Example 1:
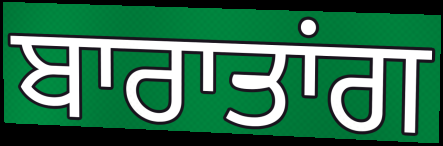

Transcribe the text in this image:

ਬਾਰਾਤਾਂਗ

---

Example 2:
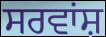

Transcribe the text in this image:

ਸਰਵਾਂਸ਼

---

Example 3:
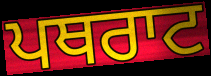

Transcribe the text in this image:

ਪਥਰਾਟ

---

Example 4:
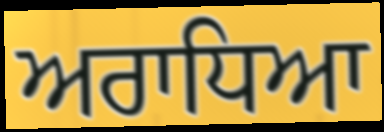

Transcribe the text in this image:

ਅਰਾਧਿਆ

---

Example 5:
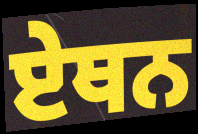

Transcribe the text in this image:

ਏਥਨ